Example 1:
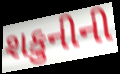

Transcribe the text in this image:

શકુનીની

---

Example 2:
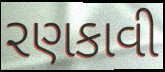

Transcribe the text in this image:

રણકાવી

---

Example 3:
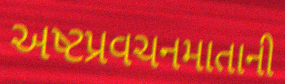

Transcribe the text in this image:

અષ્ટપ્રવચનમાતાની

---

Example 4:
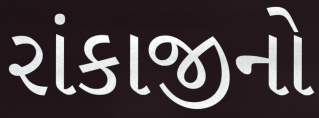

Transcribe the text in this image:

રાંકાજીનો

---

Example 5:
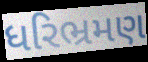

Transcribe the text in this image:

ધરિભ્રમણ